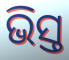
ଭିସ୍ତ